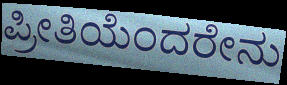
ಪ್ರೀತಿಯೆಂದರೇನು